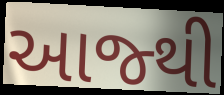
આજ્થી